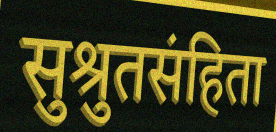
सुश्रुतसंहिता